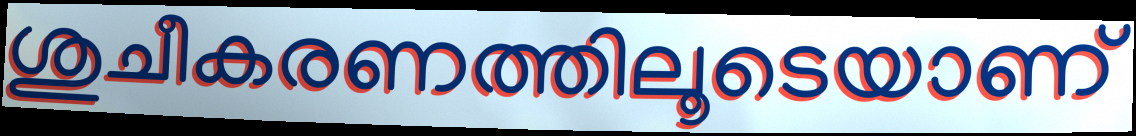
ശുചീകരണത്തിലൂടെയാണ്